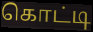
கொட்டி